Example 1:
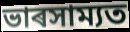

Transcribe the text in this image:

ভাৰসাম্যত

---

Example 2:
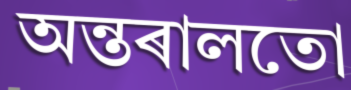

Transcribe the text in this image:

অন্তৰালতো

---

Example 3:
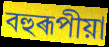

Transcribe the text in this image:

বহুৰূপীয়া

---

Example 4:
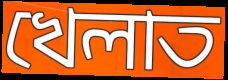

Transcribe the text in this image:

খেলাত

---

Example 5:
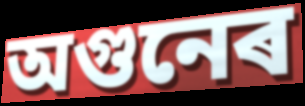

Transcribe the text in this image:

অগুনেৰ